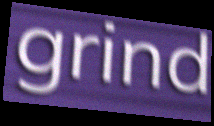
grind